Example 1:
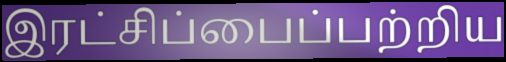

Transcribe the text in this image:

இரட்சிப்பைப்பற்றிய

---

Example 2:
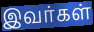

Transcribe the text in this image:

இவர்கள்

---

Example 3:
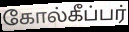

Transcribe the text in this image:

கோல்கீப்பர்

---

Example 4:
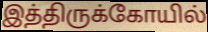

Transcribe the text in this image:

இத்திருக்கோயில்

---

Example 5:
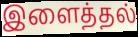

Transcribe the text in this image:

இளைத்தல்